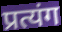
प्रत्यंग